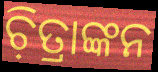
ଚ଼ିତ୍ରାଙ୍କନ